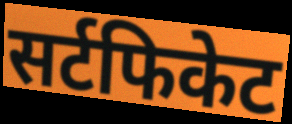
सर्टफिकेट